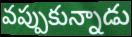
వప్పుకున్నాడు